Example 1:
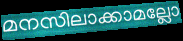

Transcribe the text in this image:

മനസിലാക്കാമല്ലോ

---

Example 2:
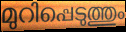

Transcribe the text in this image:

മുറിപ്പെടുത്തും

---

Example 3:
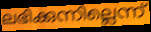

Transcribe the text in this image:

ലഭിക്കുന്നില്ലെന്ന്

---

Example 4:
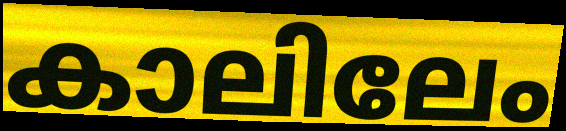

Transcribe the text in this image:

കാലിലേം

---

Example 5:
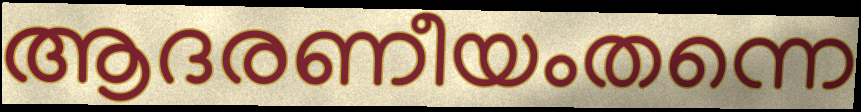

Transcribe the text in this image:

ആദരണീയംതന്നെ